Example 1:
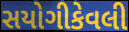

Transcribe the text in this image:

સયોગીકેવલી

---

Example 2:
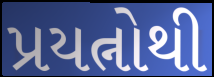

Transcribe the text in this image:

પ્રયત્નોથી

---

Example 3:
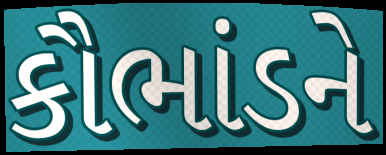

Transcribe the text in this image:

કૌભાંડને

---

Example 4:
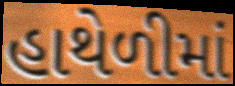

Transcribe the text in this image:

હાથેળીમાં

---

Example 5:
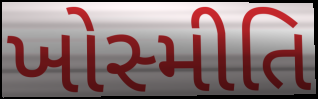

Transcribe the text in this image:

ખોસ્મીતિ